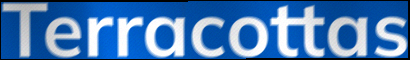
Terracottas